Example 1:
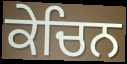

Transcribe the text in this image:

ਕੇਚਿਨ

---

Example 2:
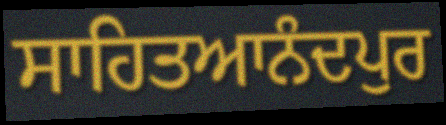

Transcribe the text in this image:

ਸਾਹਿਤਆਨੰਦਪੁਰ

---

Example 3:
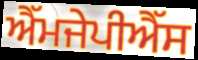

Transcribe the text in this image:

ਐੱਮਜੇਪੀਐੱਸ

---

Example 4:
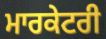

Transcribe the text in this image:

ਮਾਰਕੇਟਰੀ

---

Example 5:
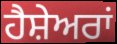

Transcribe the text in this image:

ਹੈਸ਼ੇਅਰਾਂ